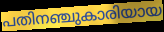
പതിനഞ്ചുകാരിയായ